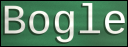
Bogle